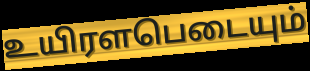
உயிரளபெடையும்